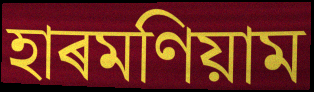
হাৰমণিয়াম